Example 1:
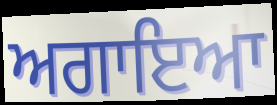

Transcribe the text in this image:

ਅਗਾਇਆ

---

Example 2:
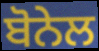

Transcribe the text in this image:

ਬੋਨੇਲ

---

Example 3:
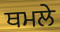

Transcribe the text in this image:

ਥਮਲੇ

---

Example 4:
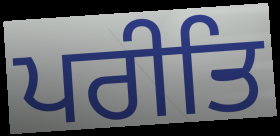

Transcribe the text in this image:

ਪਰੀਤਿ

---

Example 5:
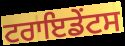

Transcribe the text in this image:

ਟਰਾਇਡੇਂਟਸ